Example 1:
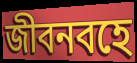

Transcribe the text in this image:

জীবনবহে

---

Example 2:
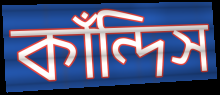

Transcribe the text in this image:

কাঁন্দিস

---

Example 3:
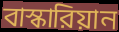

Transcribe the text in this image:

বাস্কারিয়ান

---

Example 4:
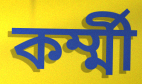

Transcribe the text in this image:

কর্ম্মী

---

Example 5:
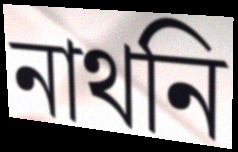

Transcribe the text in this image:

নাথনি